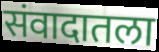
संवादातला